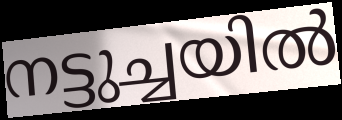
നട്ടുച്ചയിൽ